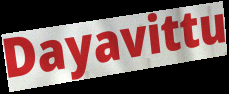
Dayavittu